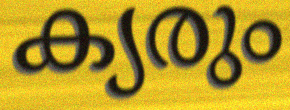
ക്യരും